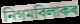
নিগমবিলাকৰ